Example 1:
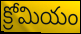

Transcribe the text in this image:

క్రోమియం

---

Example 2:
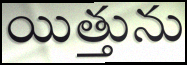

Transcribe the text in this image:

యిత్తును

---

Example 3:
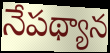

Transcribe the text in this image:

నేపథ్యాన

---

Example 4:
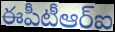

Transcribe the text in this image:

ఈపీటీఆర్ఐ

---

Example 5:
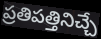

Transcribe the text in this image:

ప్రతిపత్తినిచ్చే